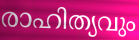
രാഹിത്യവും